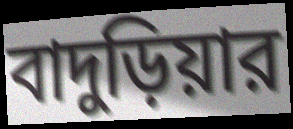
বাদুড়িয়ার